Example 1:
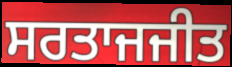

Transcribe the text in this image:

ਸਰਤਾਜਜੀਤ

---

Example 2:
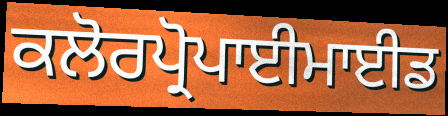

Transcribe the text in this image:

ਕਲੋਰਪ੍ਰੋਪਾਈਮਾਈਡ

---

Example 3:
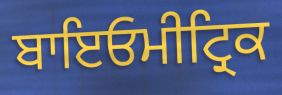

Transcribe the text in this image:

ਬਾਇਓਮੀਟ੍ਰਿਕ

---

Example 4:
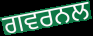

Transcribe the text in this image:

ਗਵਰਨਲ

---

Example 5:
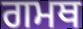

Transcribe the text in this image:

ਗਮਥ